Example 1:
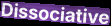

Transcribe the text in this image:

Dissociative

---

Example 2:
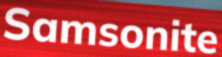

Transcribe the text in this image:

Samsonite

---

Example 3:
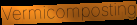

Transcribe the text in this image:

Vermicomposting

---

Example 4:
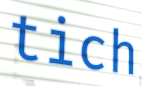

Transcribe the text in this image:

tich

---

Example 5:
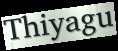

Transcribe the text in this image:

Thiyagu